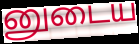
னுடைய